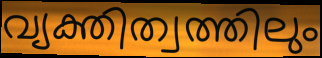
വ്യക്തിത്വത്തിലും